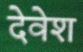
देवेश